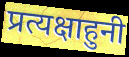
प्रत्यक्षाहुनी